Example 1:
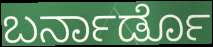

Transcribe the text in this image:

ಬರ್ನಾರ್ಡೊ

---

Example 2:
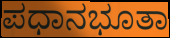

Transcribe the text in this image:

ಪಧಾನಭೂತಾ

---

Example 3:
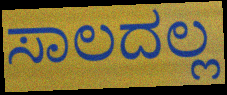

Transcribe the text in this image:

ಸಾಲದಲ್ಲ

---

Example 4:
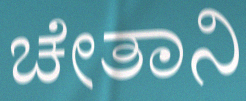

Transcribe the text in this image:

ಚೇತಾನಿ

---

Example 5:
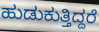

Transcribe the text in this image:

ಹುಡುಕುತ್ತಿದ್ದರೆ